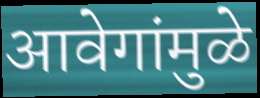
आवेगांमुळे